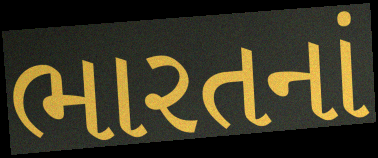
ભારતનાં